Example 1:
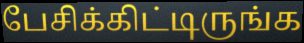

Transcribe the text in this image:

பேசிக்கிட்டிருங்க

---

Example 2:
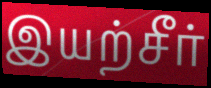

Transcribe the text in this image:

இயற்சீர்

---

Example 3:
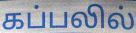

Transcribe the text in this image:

கப்பலில்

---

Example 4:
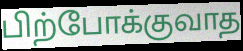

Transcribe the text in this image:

பிற்போக்குவாத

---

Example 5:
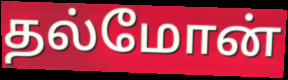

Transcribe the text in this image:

தல்மோன்